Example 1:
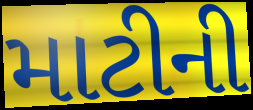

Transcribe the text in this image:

માટીની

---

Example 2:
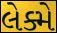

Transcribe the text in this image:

લેક્મે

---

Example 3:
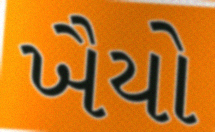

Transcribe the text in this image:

ખૈયો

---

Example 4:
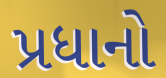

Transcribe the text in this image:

પ્રધાનો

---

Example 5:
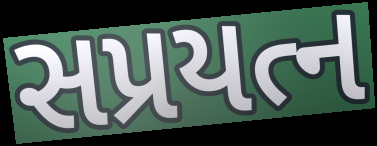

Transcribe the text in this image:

સપ્રયત્ન